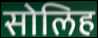
सोलिह